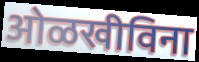
ओळखीविना